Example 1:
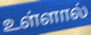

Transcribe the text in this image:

உள்ளால்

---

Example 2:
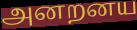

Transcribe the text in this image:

அனறனய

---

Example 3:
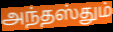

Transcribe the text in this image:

அந்தஸ்தும்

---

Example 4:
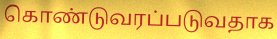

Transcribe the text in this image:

கொண்டுவரப்படுவதாக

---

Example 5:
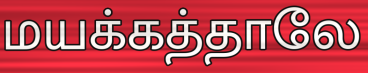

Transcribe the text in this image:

மயக்கத்தாலே